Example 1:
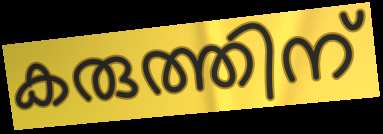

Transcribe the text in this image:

കരുത്തിന്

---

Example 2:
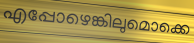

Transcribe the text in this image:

എപ്പോഴെങ്കിലുമൊക്കെ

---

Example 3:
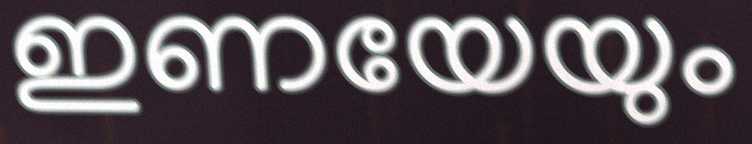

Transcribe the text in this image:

ഇണയേയും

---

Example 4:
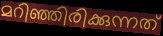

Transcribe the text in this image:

മറിഞ്ഞിരിക്കുന്നത്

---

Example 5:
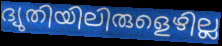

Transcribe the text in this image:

ദ്യുതിയിലിരുളെഴില്ല